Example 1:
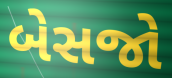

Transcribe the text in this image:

બેસજો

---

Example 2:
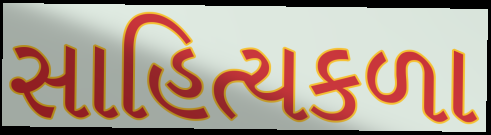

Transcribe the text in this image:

સાહિત્યકળા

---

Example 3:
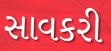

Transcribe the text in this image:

સાવકરી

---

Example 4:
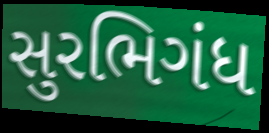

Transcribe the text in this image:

સુરભિગંધ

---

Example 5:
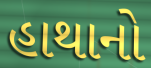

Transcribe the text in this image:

હાથાનો